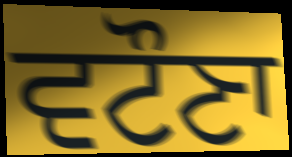
ਵਟੌਣਾ